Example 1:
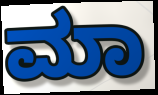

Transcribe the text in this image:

ಮಾ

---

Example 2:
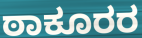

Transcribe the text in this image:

ಠಾಕೂರರ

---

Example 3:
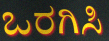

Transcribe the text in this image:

ಒರಗಿಸಿ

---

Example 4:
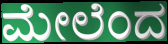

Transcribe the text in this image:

ಮೇಲೆಂದ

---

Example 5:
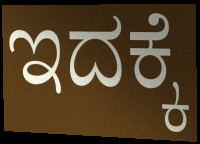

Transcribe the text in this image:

ಇದಕ್ಕೆ